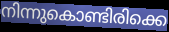
നിന്നുകൊണ്ടിരിക്കെ